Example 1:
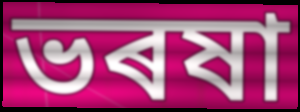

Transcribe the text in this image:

ভৰষা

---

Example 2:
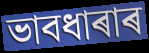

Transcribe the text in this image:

ভাবধাৰাৰ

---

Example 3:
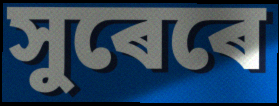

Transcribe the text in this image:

সুৰেৰে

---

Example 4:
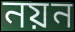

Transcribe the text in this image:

নয়ন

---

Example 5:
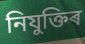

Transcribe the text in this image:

নিযুক্তিৰ